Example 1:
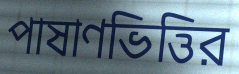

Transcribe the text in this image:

পাষাণভিত্তির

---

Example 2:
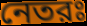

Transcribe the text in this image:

নেতরঃ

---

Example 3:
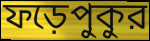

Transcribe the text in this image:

ফড়েপুকুর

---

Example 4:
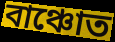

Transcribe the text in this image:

বাঞ্চোত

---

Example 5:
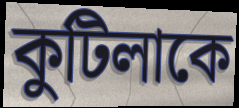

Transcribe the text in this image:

কুটিলাকে